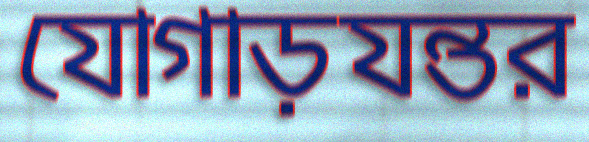
যোগাড়যন্তর